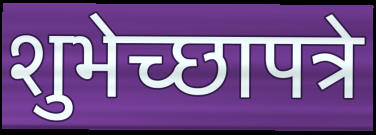
शुभेच्छापत्रे